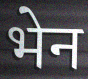
भेन